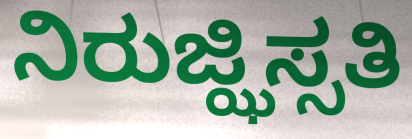
ನಿರುಜ್ಝಿಸ್ಸತಿ